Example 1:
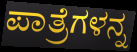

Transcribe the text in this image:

ಪಾತ್ರೆಗಳನ್ನ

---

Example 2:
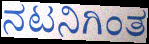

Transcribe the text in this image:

ನಟನಿಗಿಂತ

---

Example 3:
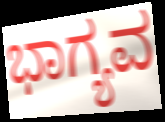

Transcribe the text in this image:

ಭಾಗ್ಯವ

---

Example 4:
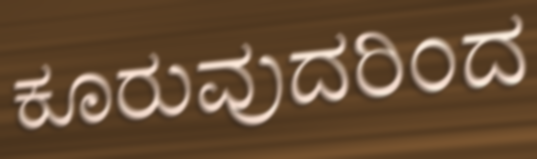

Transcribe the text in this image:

ಕೂರುವುದರಿಂದ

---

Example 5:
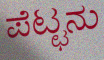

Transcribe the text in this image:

ಪೆಟ್ಟನು